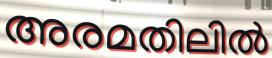
അരമതിലിൽ